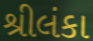
શ્રીલંકા